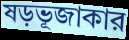
ষড়ভূজাকার